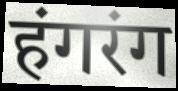
हंगरंग